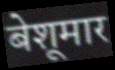
बेशूमार